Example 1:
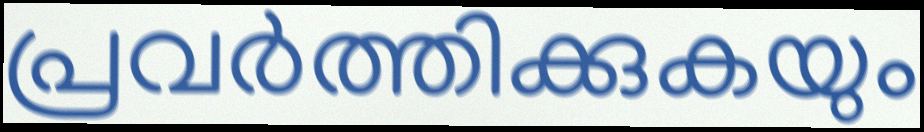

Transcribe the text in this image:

പ്രവർത്തിക്കുകയും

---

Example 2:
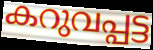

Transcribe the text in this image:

കറുവപ്പട്ട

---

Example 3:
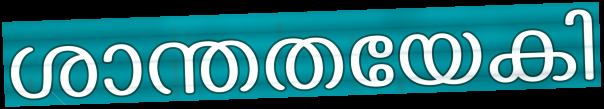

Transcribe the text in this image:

ശാന്തതയേകി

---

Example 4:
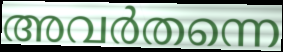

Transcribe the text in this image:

അവർതന്നെ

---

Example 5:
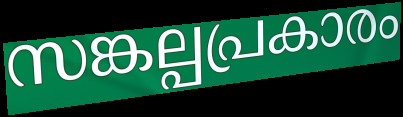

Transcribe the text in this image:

സങ്കല്പപ്രകാരം